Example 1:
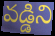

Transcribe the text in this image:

వడ్డిని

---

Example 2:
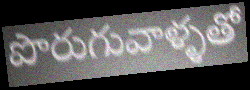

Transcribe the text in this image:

పొరుగువాళ్ళతో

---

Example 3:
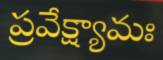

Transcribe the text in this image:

ప్రవేక్ష్యామః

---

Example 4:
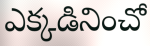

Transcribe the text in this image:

ఎక్కడినించో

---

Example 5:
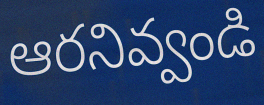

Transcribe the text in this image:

ఆరనివ్వండి